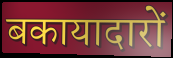
बकायादारों